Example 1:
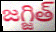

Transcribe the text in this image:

జగ్జిత్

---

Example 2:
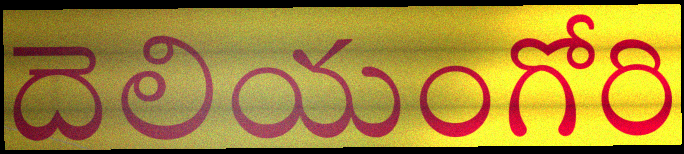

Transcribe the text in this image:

దెలియంగోరి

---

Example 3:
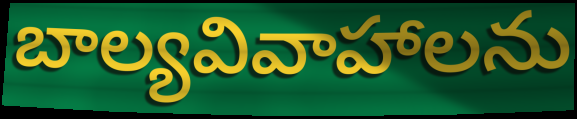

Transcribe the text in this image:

బాల్యవివాహాలను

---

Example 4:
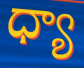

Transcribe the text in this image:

ధ్యా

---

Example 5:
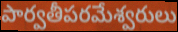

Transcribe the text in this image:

పార్వతీపరమేశ్వరులు